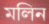
মলিন